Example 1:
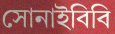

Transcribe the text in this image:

সোনাইবিবি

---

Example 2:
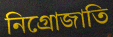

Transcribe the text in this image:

নিগ্রোজাতি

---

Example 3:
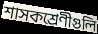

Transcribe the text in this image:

শাসকশ্রেণীগুলি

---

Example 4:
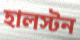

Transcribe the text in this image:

হালস্টন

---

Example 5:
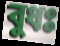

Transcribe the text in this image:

বুধঃ